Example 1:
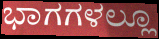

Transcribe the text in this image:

ಭಾಗಗಳಲ್ಲೂ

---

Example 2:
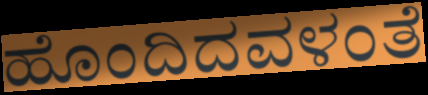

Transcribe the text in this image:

ಹೊಂದಿದವಳಂತೆ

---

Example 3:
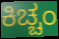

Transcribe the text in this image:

ಕಿಚ್ಚಂ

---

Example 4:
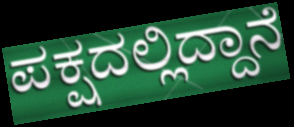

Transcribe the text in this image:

ಪಕ್ಷದಲ್ಲಿದ್ದಾನೆ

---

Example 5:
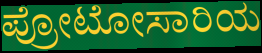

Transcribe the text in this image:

ಪ್ರೋಟೋಸಾರಿಯ